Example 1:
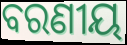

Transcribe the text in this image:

ବରଣୀୟ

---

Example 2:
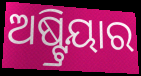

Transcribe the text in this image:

ଅଷ୍ଟ୍ରିୟାର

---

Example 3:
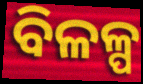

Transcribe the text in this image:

ବିଳଳ୍ପ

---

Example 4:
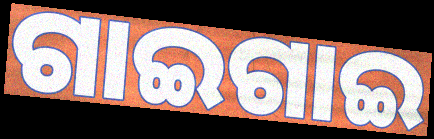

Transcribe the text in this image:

ଗାଇଗାଇ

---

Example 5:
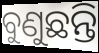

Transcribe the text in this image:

ବୁଣୁଛନ୍ତି